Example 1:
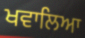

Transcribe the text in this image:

ਖਵਾਲਿਆ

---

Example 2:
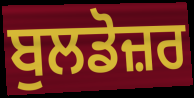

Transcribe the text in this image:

ਬੁਲਡੋਜ਼ਰ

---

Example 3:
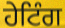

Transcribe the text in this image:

ਹੇਟਿੰਗ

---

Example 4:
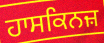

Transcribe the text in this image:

ਹਾਸਕਿਨਜ਼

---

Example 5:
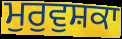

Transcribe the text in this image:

ਮੁਰੁਵੁਸ਼ਕਾ